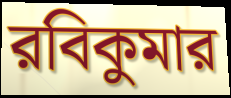
রবিকুমার